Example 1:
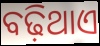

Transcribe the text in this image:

ବଢ଼ିଥାଏ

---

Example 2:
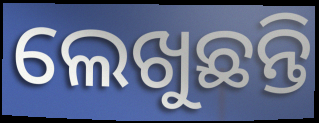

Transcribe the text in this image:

ଲେଖୁଛନ୍ତି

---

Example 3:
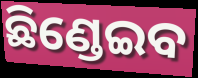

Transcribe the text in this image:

ଛିଣ୍ଡେଇବ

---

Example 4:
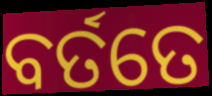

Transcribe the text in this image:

ବର୍ତତେ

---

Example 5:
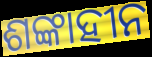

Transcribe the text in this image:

ଶଙ୍କାହୀନ